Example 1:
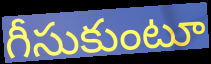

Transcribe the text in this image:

గీసుకుంటూ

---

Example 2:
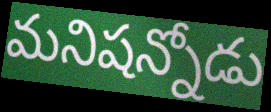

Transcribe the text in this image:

మనిషన్నోడు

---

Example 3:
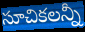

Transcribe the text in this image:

సూచికలన్నీ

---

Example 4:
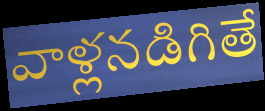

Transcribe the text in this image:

వాళ్లనడిగితే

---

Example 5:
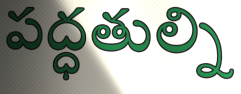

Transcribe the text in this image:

పద్ధతుల్ని